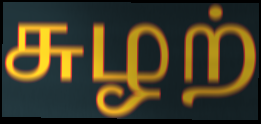
சுழற்